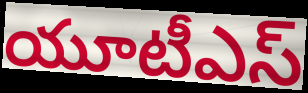
యూటీఎస్